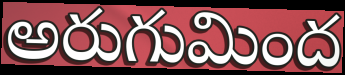
అరుగుమింద